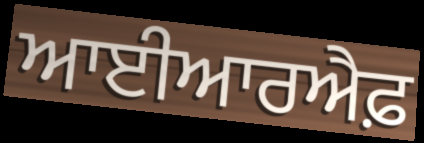
ਆਈਆਰਐਫ਼